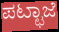
ಪಟ್ಟಾಜೆ